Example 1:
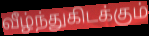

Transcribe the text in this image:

வீழ்ந்துகிடக்கும்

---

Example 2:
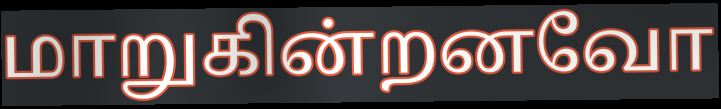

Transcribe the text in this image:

மாறுகின்றனவோ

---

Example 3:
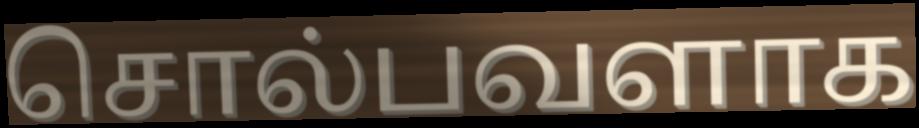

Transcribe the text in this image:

சொல்பவளாக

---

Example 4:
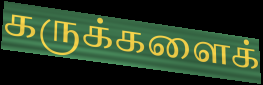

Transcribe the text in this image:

கருக்களைக்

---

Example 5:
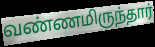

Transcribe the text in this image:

வண்ணமிருந்தார்